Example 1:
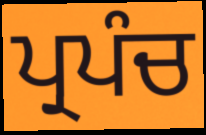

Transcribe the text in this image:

ਪ੍ਰਪੰਚ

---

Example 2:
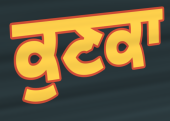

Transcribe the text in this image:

ਕੁਣਕਾ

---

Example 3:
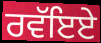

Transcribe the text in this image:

ਰਵੱਇਏ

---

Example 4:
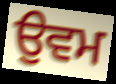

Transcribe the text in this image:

ਉਵਮ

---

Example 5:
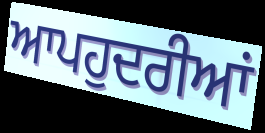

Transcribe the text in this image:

ਆਪਹੁਦਰੀਆਂ